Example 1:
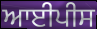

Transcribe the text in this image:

ਆਈਪੀਸ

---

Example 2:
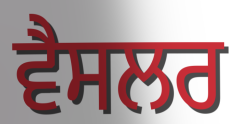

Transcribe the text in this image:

ਵੈਸਲਰ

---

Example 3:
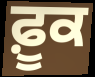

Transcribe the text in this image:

ਫ਼ੂਕ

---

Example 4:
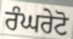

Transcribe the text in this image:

ਰੰਘਰੇਟੋ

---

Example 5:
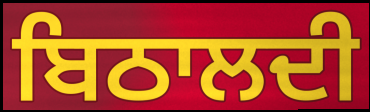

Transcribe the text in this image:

ਬਿਠਾਲਦੀ